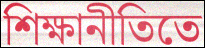
শিক্ষানীতিতে